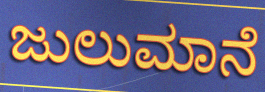
ಜುಲುಮಾನೆ